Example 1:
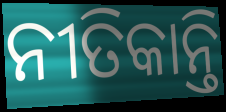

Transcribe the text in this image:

ନୀତିକାନ୍ତି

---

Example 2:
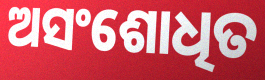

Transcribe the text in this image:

ଅସଂଶୋଧିତ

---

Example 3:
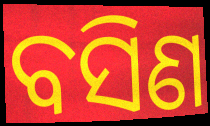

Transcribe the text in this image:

ବସିଣ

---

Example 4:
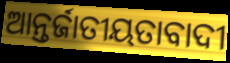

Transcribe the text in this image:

ଆନ୍ତର୍ଜାତୀୟତାବାଦୀ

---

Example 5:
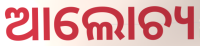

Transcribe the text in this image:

ଆଲୋଚ୍ୟ